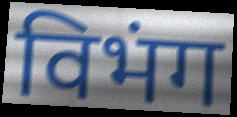
विभंग